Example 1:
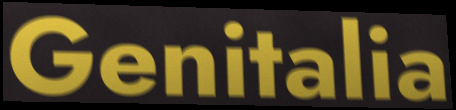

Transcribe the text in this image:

Genitalia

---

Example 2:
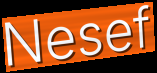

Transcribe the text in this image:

Nesef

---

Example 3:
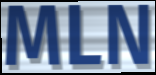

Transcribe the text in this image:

MLN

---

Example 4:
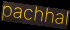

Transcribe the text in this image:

pachhal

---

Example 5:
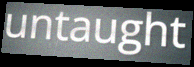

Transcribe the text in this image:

untaught